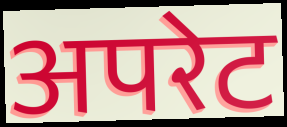
अपरेट